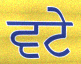
ਵਟੇ